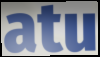
atu